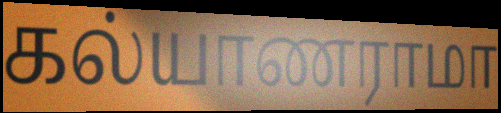
கல்யாணராமா